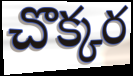
చొక్కర